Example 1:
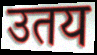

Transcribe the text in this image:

उतय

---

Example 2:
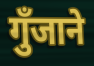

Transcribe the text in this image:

गुँजाने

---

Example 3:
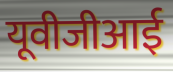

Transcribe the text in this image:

यूवीजीआई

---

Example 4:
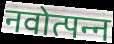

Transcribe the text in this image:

नवोत्पन्न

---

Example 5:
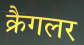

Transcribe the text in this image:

क्रैगलर